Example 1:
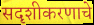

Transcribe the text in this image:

सदृशीकरणाचे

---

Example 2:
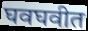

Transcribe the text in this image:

घवघवीत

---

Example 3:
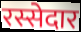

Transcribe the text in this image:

रस्सेदार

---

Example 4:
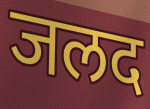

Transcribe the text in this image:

जलद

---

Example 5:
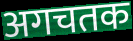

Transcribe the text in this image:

अगचतक